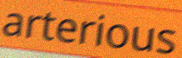
arterious